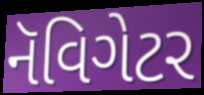
નૅવિગેટર